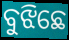
ବୁଝିଛେ